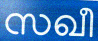
സഖീ